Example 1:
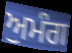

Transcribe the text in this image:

ਅੁਮੰਗ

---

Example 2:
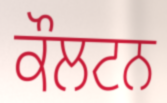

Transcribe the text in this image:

ਕੌਲਟਨ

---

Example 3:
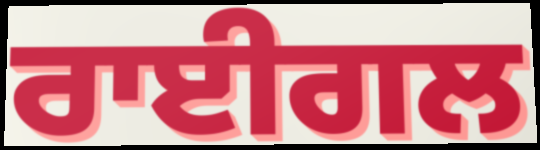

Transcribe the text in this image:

ਰਾਈਗਲ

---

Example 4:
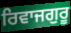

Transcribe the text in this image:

ਰਿਵਾਜਗੁਰੂ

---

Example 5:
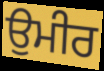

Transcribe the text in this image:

ਉਮੀਰ